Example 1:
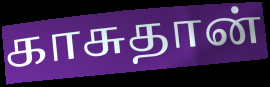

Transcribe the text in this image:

காசுதான்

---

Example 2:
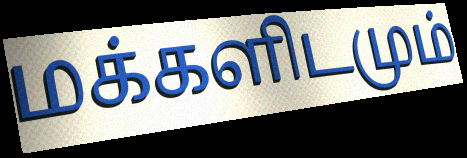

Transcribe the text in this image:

மக்களிடமும்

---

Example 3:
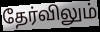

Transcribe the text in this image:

தேர்விலும்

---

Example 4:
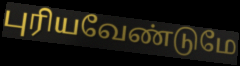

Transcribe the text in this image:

புரியவேண்டுமே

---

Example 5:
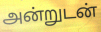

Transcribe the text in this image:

அன்றுடன்